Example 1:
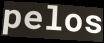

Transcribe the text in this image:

pelos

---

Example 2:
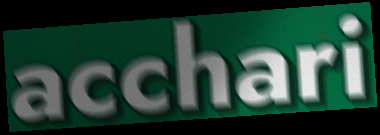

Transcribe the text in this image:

acchari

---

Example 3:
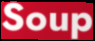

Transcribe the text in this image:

Soup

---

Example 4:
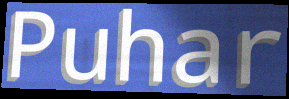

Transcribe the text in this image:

Puhar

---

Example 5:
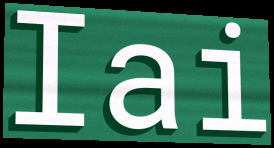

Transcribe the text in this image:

Iai